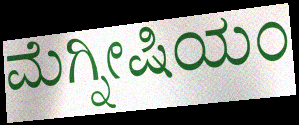
ಮೆಗ್ನೀಷಿಯಂ